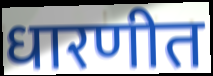
धारणीत